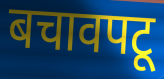
बचावपटू